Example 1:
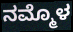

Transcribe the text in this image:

ನಮ್ಮೊಳ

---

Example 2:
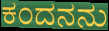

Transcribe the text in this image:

ಕಂದನನು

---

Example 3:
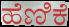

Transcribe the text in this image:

ಹೆಣಿಕೆ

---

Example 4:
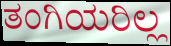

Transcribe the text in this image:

ತಂಗಿಯರಿಲ್ಲ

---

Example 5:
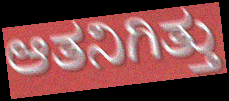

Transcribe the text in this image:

ಆತನಿಗಿತ್ತು